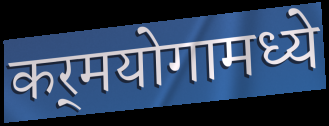
कर्मयोगामध्ये